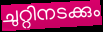
ചുറ്റിനടക്കും